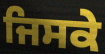
ਜਿਸਕੇ